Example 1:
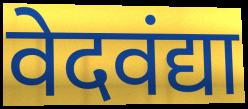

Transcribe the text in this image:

वेदवंद्या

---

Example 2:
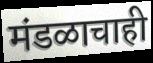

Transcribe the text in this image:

मंडळाचाही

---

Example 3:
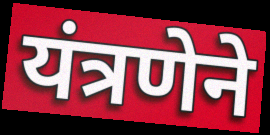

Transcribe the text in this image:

यंत्रणेने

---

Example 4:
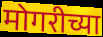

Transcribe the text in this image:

मोगरीच्या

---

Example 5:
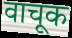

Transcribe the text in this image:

वाचूक